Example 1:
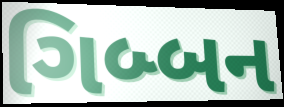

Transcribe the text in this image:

ગિબ્બન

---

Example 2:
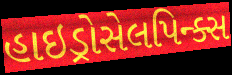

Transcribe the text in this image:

હાઇડ્રોસેલપિન્ક્સ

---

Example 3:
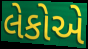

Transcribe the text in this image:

લેકોએ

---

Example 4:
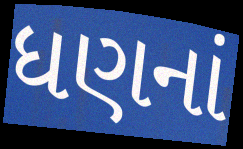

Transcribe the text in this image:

ધણનાં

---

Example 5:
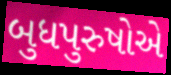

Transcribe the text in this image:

બુધપુરુષોએ